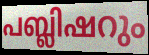
പബ്ലിഷറും